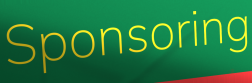
Sponsoring